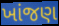
ખાંજણ